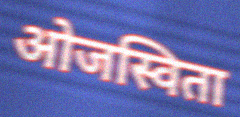
ओजस्विता